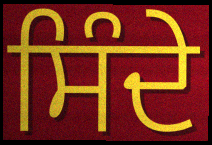
ਸਿੰਦੇ